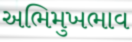
અભિમુખભાવ